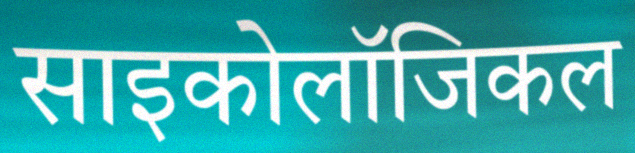
साइकोलॉजिकल